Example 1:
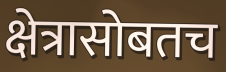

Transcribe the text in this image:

क्षेत्रासोबतच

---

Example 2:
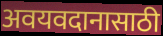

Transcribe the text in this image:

अवयवदानासाठी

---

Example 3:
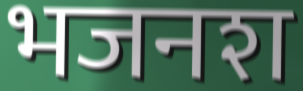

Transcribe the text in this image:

भजनश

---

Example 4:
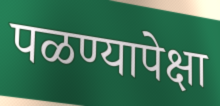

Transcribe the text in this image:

पळण्यापेक्षा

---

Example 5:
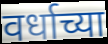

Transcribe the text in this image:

वर्धाच्या